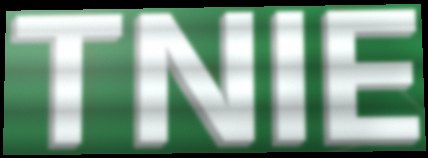
TNIE